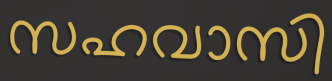
സഹവാസി